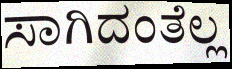
ಸಾಗಿದಂತೆಲ್ಲ